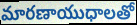
మారణాయుధాలతో